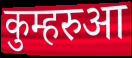
कुम्हरुआ